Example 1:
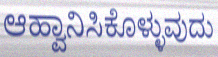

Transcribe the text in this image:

ಆಹ್ವಾನಿಸಿಕೊಳ್ಳುವುದು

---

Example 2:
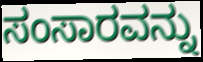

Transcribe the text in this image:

ಸಂಸಾರವನ್ನು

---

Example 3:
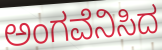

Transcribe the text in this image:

ಅಂಗವೆನಿಸಿದ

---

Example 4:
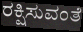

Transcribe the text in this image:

ರಕ್ಷಿಸುವಂತೆ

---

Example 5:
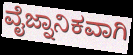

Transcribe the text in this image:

ವೈಜ್ನಾನಿಕವಾಗಿ